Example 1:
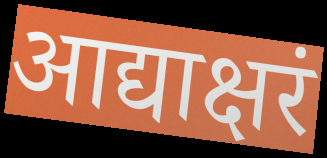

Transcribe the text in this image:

आद्याक्षरं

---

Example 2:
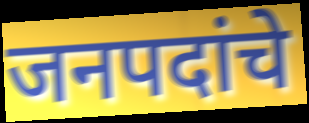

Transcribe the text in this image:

जनपदांचे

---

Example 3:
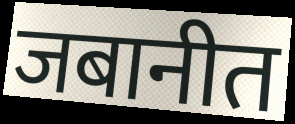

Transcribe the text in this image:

जबानीत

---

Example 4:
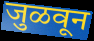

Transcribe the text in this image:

जुळवून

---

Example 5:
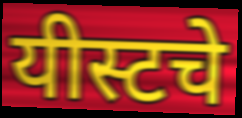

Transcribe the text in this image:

यीस्टचे